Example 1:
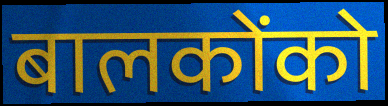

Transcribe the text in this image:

बालकोंको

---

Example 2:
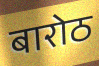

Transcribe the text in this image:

बारोठ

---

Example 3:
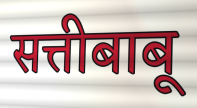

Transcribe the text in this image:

सत्तीबाबू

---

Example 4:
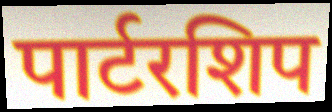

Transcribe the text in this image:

पार्टरशिप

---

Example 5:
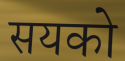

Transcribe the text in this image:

सयको